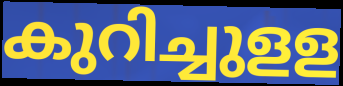
കുറിച്ചുളള